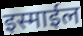
इस्माईल